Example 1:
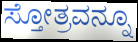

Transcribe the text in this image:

ಸ್ತೋತ್ರವನ್ನೂ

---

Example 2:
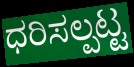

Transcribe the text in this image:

ಧರಿಸಲ್ಪಟ್ಟ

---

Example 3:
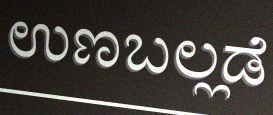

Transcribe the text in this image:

ಉಣಬಲ್ಲಡೆ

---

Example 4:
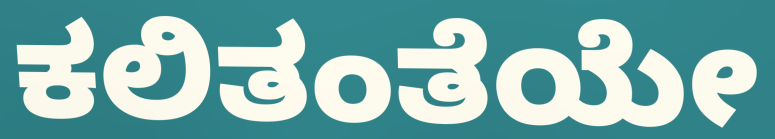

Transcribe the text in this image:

ಕಲಿತಂತೆಯೇ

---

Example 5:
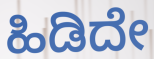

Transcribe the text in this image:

ಹಿಡಿದೇ